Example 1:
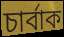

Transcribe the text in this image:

চার্বাক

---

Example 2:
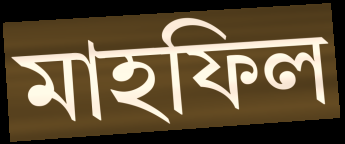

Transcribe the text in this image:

মাহফিল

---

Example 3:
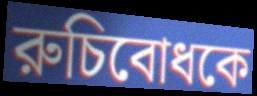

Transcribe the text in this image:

রুচিবোধকে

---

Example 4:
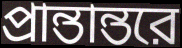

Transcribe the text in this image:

প্রান্তান্তরে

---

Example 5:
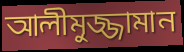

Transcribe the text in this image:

আলীমুজ্জামান